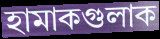
হামাকগুলাক